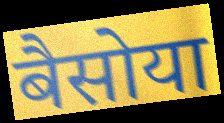
बैसोया